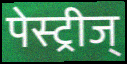
पेस्ट्रीज्